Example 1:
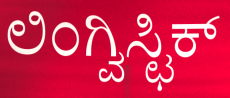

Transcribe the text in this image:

ಲಿಂಗ್ವಿಸ್ಟಿಕ್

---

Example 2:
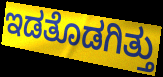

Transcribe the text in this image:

ಇಡತೊಡಗಿತ್ತು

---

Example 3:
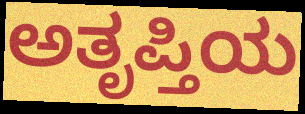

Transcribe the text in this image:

ಅತೃಪ್ತಿಯ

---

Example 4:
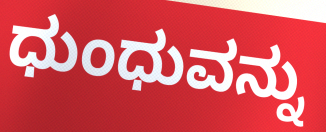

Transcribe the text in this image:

ಧುಂಧುವನ್ನು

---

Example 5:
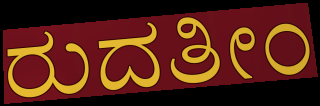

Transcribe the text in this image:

ರುದತೀಂ